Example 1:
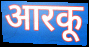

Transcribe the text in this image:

आरकू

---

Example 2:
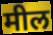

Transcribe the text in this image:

मील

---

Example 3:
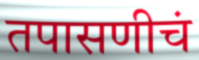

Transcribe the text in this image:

तपासणीचं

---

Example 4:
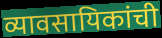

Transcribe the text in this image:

व्यावसायिकांची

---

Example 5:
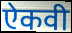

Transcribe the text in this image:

ऐकवी